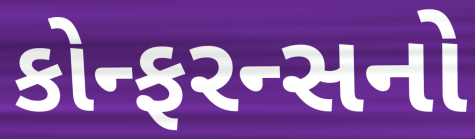
કોન્ફરન્સનો